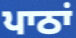
ਪਾਠਾਂ